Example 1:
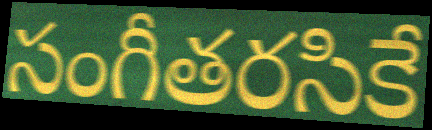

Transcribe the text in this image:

సంగీతరసికే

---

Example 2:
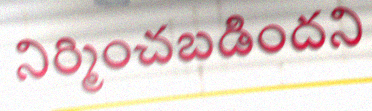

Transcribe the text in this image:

నిర్మించబడిందని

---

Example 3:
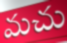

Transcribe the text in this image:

మచు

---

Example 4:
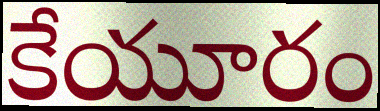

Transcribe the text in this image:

కేయూరం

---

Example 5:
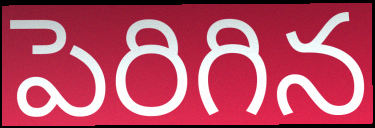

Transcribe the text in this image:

పెరిగిన